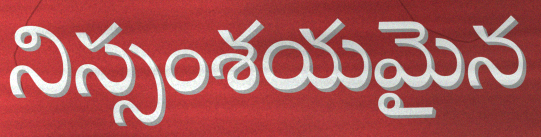
నిస్సంశయమైన